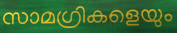
സാമഗ്രികളെയും